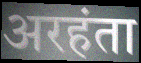
अरहंता